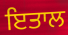
ਇਤਾਲ